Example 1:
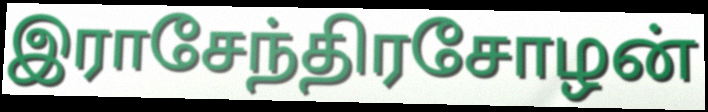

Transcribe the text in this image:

இராசேந்திரசோழன்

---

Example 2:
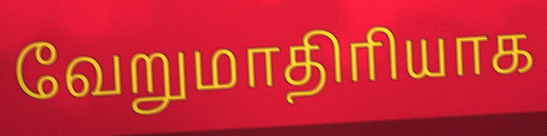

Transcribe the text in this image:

வேறுமாதிரியாக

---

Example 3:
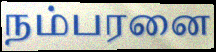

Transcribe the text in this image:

நம்பரனை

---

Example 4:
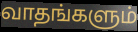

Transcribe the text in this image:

வாதங்களும்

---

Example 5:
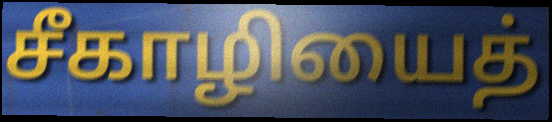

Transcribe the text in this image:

சீகாழியைத்